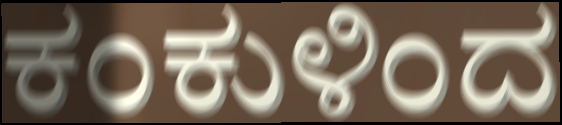
ಕಂಕುಳಿಂದ